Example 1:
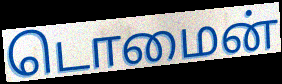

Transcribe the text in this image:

டொமைன்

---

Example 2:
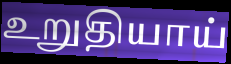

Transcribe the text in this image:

உறுதியாய்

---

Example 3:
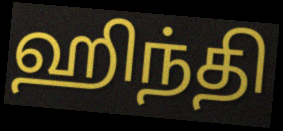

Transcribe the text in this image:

ஹிந்தி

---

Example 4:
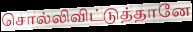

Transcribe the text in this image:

சொல்லிவிட்டுத்தானே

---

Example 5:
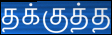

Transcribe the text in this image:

தக்குத்த